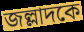
জল্লাদকে